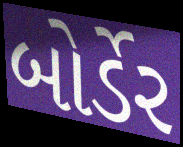
બોર્ડેર